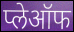
प्लेऑफ